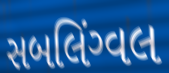
સબલિંગ્વલ